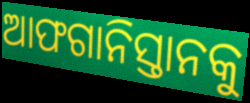
ଆଫଗାନିସ୍ତାନକୁ